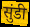
सुंडी